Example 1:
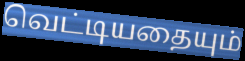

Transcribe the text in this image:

வெட்டியதையும்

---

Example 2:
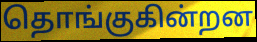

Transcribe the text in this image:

தொங்குகின்றன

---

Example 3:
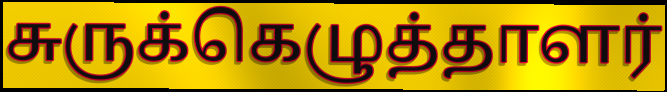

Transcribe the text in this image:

சுருக்கெழுத்தாளர்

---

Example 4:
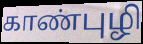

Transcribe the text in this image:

காண்புழி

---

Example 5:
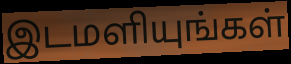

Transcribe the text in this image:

இடமளியுங்கள்